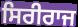
ਸਿਰੀਰਾਜ